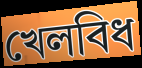
খেলবিধ